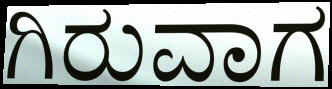
ಗಿರುವಾಗ